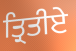
ਤ੍ਰਿਤੀਏ